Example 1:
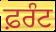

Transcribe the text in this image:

ਫ਼ਰੰਟ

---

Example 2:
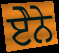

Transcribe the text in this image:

ਏੇਨੇ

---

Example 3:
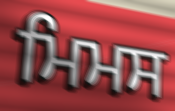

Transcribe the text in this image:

ਮਿਮਸ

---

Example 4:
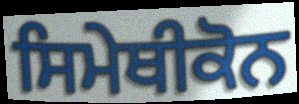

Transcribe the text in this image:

ਸਿਮੇਥੀਕੋਨ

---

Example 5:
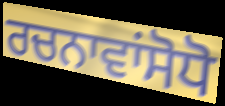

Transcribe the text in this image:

ਰਚਨਾਵਾਂਸੋਧੋ